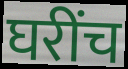
घरींच